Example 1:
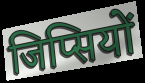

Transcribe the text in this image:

जिप्सियों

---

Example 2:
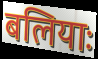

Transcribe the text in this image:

बलियाः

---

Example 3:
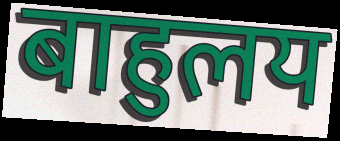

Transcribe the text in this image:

बाहुलय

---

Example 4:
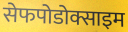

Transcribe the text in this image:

सेफपोडोक्साइम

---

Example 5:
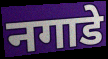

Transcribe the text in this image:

नगाडे